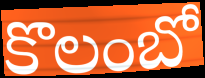
కొలంబో